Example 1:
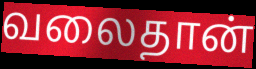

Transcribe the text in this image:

வலைதான்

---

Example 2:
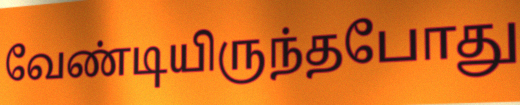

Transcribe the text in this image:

வேண்டியிருந்தபோது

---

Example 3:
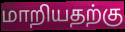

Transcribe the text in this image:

மாறியதற்கு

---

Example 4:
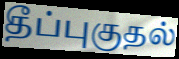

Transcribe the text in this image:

தீப்புகுதல்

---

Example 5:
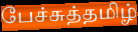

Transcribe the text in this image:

பேச்சுத்தமிழ்